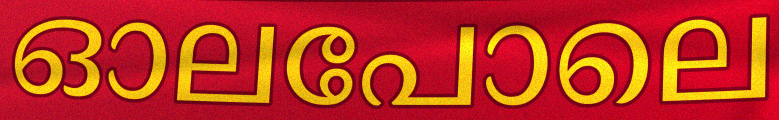
ഓലപോലെ